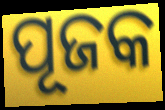
ପୂଜକ